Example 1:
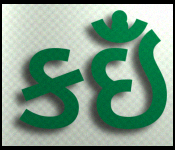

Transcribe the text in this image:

કઇઁં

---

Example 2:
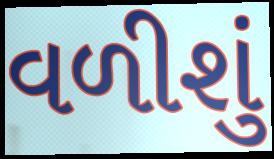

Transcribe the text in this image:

વળીશું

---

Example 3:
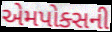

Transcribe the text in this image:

એમપોક્સની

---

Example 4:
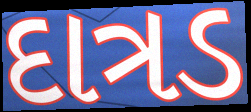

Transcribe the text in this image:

દાત્રડ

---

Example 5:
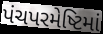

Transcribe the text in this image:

પંચપરમેષ્ટિમાં